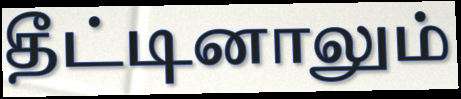
தீட்டினாலும்